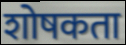
शोषकता